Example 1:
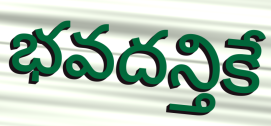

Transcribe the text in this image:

భవదన్తికే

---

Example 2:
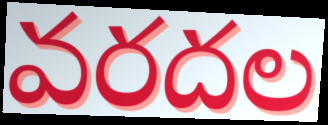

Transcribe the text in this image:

వరదల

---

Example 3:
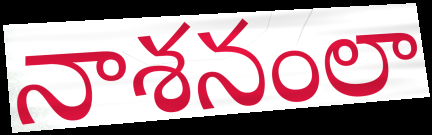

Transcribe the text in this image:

నాశనంలా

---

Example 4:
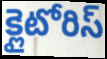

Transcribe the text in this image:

క్లైటోరిస్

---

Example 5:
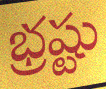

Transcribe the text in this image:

భ్రష్టు